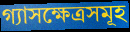
গ্যাসক্ষেত্রসমূহ